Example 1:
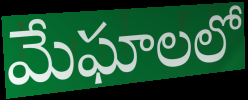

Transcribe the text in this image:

మేఘాలలో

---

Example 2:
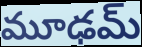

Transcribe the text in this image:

మూఢమ్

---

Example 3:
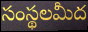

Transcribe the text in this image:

సంస్థలమీద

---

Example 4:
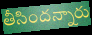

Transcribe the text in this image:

తీసిందన్నారు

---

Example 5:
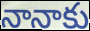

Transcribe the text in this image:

నానాకు